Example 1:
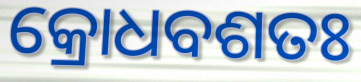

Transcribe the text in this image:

କ୍ରୋଧବଶତଃ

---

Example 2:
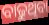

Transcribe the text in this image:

ବାଢୁଥିବା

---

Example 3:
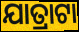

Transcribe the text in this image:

ଯାତ୍ରାଟା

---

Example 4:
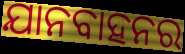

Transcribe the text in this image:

ଯାନବାହନର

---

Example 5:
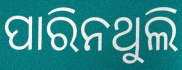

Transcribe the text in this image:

ପାରିନଥୁଲି